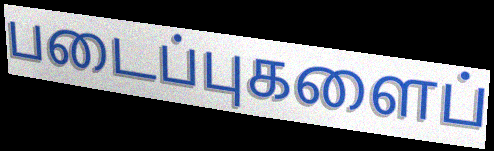
படைப்புகளைப்